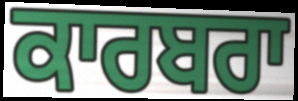
ਕਾਰਬਰਾ